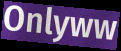
Onlyww